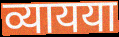
व्यायया